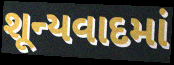
શૂન્યવાદમાં